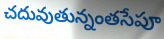
చదువుతున్నంతసేపూ